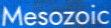
Mesozoic